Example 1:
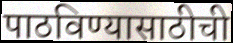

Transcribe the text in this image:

पाठविण्यासाठीची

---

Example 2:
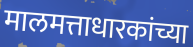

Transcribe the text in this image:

मालमत्ताधारकांच्या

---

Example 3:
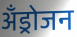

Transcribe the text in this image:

अँड्रोजन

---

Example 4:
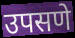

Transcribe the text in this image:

उपसणे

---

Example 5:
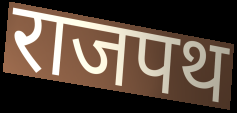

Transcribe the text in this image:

राजपथ